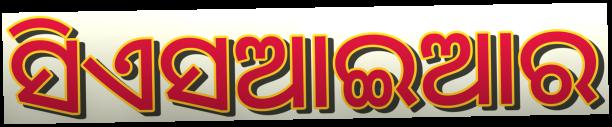
ସିଏସଆଇଆର